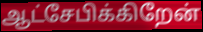
ஆட்சேபிக்கிறேன்